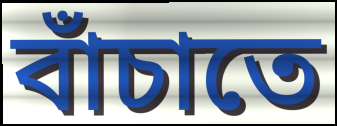
বাঁচাতে